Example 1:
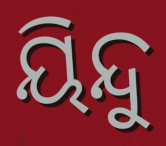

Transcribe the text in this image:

ୟିନ୍ଦୁ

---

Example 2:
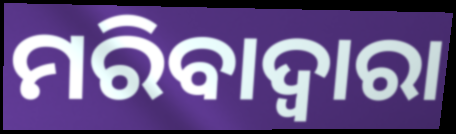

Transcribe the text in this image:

ମରିବାଦ୍ୱାରା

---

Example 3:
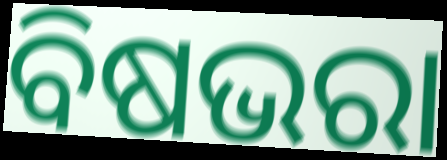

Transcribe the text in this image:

ବିଷଭରା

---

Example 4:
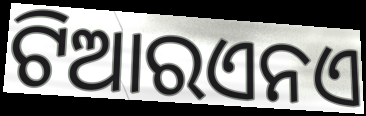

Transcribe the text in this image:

ଟିଆରଏନଏ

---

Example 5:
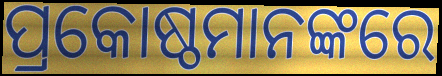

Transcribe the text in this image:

ପ୍ରକୋଷ୍ଠମାନଙ୍କରେ